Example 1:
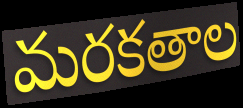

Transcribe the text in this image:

మరకతాల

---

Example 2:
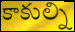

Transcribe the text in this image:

కాకుల్ని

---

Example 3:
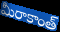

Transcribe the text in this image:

మీరాకాంత్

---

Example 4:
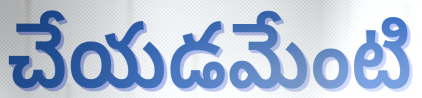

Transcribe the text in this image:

చేయడమేంటి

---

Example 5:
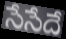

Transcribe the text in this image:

సేసేదే